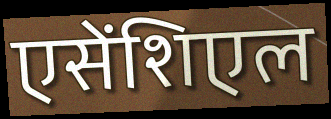
एसेंशिएल